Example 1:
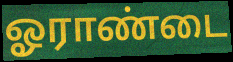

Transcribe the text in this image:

ஓராண்டை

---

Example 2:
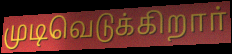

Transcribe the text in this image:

முடிவெடுக்கிறார்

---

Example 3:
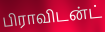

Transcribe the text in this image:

பிராவிடன்ட்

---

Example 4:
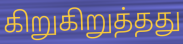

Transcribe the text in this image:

கிறுகிறுத்தது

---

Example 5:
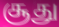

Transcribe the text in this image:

சூது